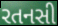
રતનસી